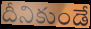
దీనికుండే